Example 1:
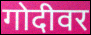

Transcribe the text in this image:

गोदीवर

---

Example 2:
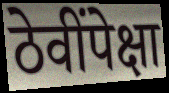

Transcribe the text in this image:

ठेवींपेक्षा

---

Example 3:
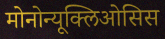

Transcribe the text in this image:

मोनोन्यूक्लिओसिस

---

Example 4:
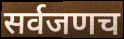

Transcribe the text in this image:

सर्वजणच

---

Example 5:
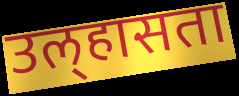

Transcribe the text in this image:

उल्हासता